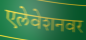
एलेवेशनवर